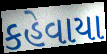
કહેવાયા